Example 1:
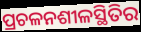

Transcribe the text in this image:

ପ୍ରଚଳନଶୀଳସ୍ଥିତିର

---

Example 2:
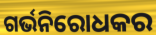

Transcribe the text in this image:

ଗର୍ଭନିରୋଧକର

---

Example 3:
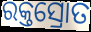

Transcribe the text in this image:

ରକ୍ତସ୍ରୋତ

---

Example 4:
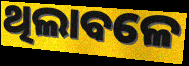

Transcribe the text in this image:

ଥିଲାବଳେ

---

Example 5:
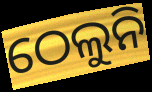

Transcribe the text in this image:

ଠେଲୁନି